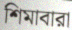
শিমাবারা